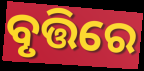
ବୃତ୍ତିରେ